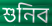
শুনিব